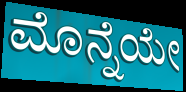
ಮೊನ್ನೆಯೇ